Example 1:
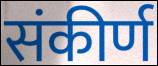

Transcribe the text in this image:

संकीर्ण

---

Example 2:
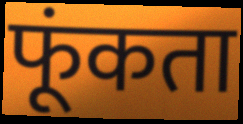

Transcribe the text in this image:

फूंकता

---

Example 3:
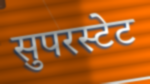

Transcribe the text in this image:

सुपरस्टेट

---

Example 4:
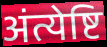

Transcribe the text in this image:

अंत्येष्टि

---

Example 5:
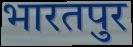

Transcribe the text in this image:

भारतपुर